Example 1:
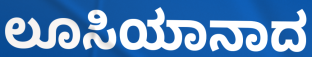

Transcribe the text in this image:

ಲೂಸಿಯಾನಾದ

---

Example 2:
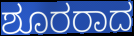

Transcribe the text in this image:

ಶೂರರಾದ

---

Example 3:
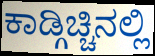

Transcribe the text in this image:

ಕಾಡ್ಗಿಚ್ಚಿನಲ್ಲಿ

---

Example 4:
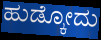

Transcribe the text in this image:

ಹುಡ್ಕೋದು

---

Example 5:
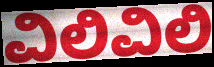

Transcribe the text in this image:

ವಿಲಿವಿಲಿ